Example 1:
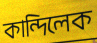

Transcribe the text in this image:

কান্দিলেক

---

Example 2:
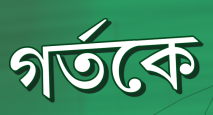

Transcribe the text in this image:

গর্তকে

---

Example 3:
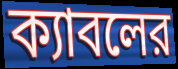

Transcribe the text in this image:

ক্যাবলের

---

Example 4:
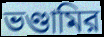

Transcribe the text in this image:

ভণ্ডামির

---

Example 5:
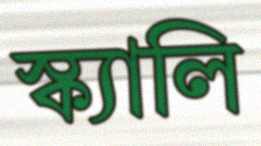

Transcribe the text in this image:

স্ক্যালি